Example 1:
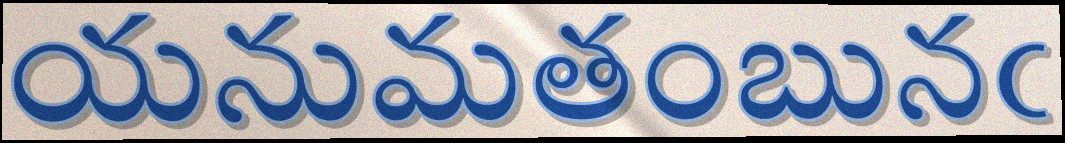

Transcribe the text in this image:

యనుమతంబునఁ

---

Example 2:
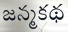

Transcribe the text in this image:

జన్మకథ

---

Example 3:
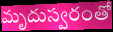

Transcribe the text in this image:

మృదుస్వరంతో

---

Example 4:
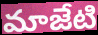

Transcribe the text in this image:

మాజేటి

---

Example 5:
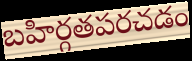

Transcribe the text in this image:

బహిర్గతపరచడం